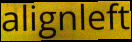
alignleft